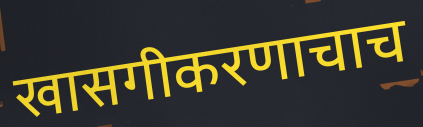
खासगीकरणाचाच